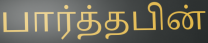
பார்த்தபின்